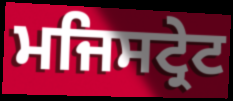
ਮਜਿਸਟ੍ਰੇਟ